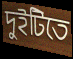
দুইটিতে